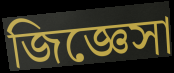
জিজ্ঞেসা